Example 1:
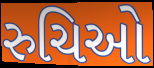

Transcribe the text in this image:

રુચિઓ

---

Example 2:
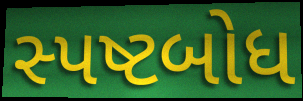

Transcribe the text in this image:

સ્પષ્ટબોધ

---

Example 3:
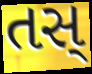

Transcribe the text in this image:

તસ્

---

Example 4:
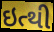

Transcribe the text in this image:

ઇત્થી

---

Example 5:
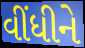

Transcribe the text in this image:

વીંધીને